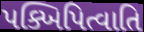
પક્ખિપિત્વાતિ